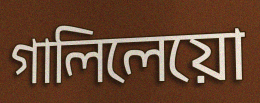
গালিলেয়ো